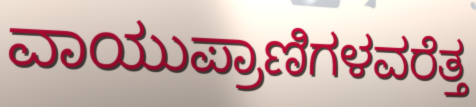
ವಾಯುಪ್ರಾಣಿಗಳವರೆತ್ತ